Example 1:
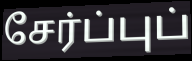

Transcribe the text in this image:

சேர்ப்புப்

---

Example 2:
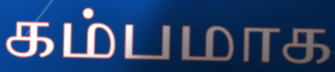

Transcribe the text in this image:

கம்பமாக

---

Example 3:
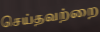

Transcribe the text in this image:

செய்தவற்றை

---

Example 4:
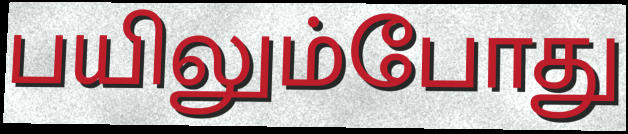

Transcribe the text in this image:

பயிலும்போது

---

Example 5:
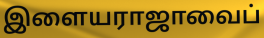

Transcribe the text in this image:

இளையராஜாவைப்